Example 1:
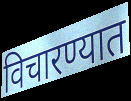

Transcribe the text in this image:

विचारण्यात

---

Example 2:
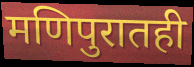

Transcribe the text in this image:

मणिपुरातही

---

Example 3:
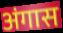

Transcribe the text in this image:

अंगास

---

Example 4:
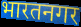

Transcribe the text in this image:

भारतनगर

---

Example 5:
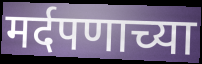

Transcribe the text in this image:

मर्दपणाच्या